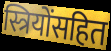
स्त्रियोंसहित